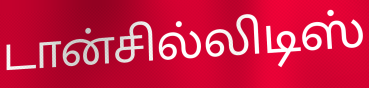
டான்சில்லிடிஸ்